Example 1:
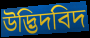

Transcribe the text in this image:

উদ্ভিদবিদ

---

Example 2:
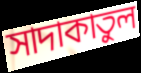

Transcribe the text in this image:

সাদাকাতুল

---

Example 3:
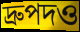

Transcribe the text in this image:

দ্রুপদও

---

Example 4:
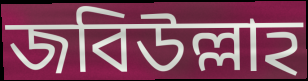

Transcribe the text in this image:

জবিউল্লাহ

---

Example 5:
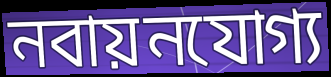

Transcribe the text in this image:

নবায়নযোগ্য